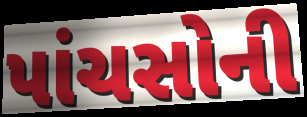
પાંચસોની